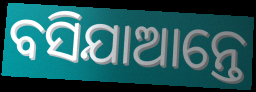
ବସିଯାଆନ୍ତେ